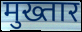
मुख्तार